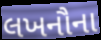
લખનૌના